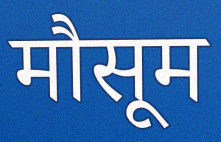
मौसूम